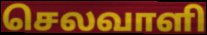
செலவாளி